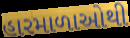
હારમાળાઓથી